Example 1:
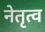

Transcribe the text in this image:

नेतृत्व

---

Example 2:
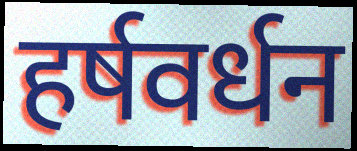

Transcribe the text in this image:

हर्षवर्धन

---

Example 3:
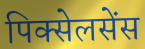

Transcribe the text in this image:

पिक्सेलसेंस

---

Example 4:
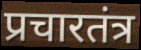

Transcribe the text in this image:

प्रचारतंत्र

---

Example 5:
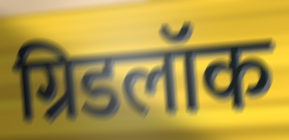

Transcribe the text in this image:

ग्रिडलॉक